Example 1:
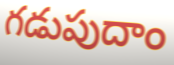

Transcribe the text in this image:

గడుపుదాం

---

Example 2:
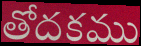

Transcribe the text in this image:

తోదకము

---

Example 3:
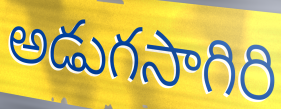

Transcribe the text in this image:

అడుగసాగిరి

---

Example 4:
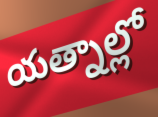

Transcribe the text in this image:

యత్నాల్లో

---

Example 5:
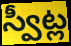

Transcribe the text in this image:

స్వీట్ల